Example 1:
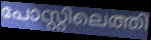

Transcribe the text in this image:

പോസ്റ്റിലെത്തി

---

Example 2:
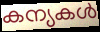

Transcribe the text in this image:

കന്യകൾ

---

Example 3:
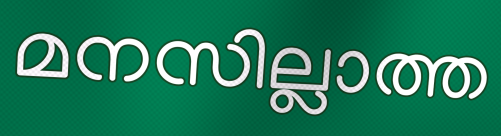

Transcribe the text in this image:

മനസില്ലാത്ത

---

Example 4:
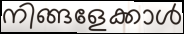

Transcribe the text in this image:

നിങ്ങളേക്കാൾ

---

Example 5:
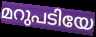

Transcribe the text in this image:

മറുപടിയേ